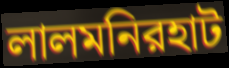
লালমনিরহাট